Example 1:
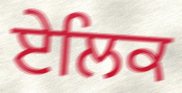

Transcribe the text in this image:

ਏਲਿਕ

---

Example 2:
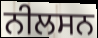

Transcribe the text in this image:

ਨੀਲਸਨ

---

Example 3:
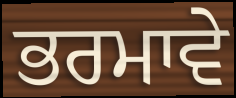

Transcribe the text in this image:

ਭਰਮਾਵੇ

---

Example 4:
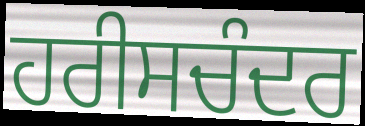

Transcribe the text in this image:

ਹਰੀਸਚੰਦਰ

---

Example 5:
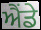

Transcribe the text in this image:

ਐਂਡੇ